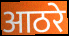
आठरे